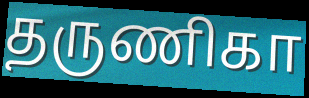
தருணிகா